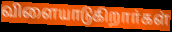
விளையாடுகிறார்கள்